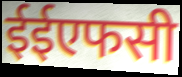
ईईएफसी